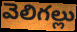
వెలిగల్లు